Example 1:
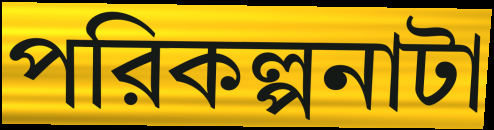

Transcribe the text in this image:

পরিকল্পনাটা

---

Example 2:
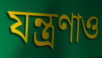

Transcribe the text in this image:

যন্ত্রণাও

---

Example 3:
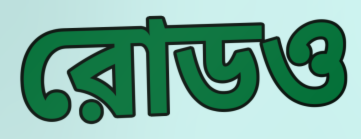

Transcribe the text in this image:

রোডও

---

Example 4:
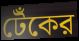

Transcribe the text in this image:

টেঁকের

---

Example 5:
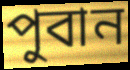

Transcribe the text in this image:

পুবান